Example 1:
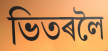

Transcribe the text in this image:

ভিতৰলৈ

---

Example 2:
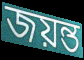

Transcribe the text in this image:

জয়ন্ত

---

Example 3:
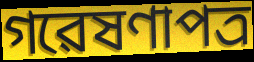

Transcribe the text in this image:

গৱেষণাপত্ৰ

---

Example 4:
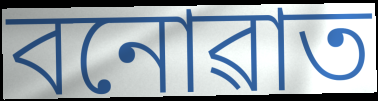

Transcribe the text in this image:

বনোৱাত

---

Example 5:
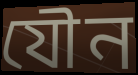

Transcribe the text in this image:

যৌন